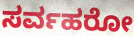
ಸರ್ವಹರೋ